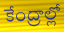
కేంద్రాల్లో